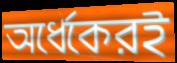
অর্ধেকেরই